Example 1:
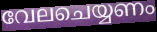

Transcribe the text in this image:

വേലചെയ്യണം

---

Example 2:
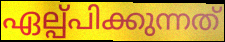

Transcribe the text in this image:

ഏല്പ്പിക്കുന്നത്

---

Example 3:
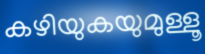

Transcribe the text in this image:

കഴിയുകയുമുള്ളൂ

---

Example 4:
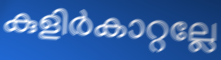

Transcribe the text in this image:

കുളിർകാറ്റല്ലേ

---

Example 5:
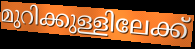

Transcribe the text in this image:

മുറിക്കുള്ളിലേക്ക്